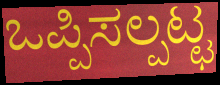
ಒಪ್ಪಿಸಲ್ಪಟ್ಟ